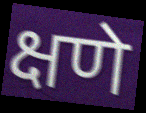
क्षणे